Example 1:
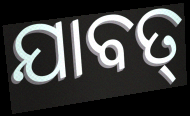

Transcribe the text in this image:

ଯାବତ୍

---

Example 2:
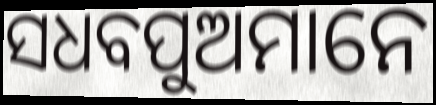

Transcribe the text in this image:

ସଧବପୁଅମାନେ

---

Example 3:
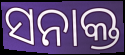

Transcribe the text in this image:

ସନାକ୍ତ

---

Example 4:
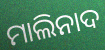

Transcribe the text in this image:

ମାଲିନାଦ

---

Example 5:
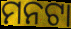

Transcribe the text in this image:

ମନଟା